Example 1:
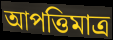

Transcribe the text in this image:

আপত্তিমাত্র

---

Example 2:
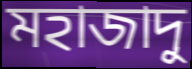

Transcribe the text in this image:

মহাজাদু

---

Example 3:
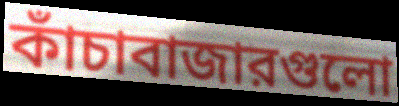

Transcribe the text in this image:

কাঁচাবাজারগুলো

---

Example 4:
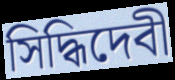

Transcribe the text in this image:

সিদ্ধিদেবী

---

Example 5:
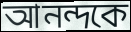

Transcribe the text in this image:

আনন্দকে